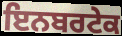
ਇਨਬਰਟੇਕ